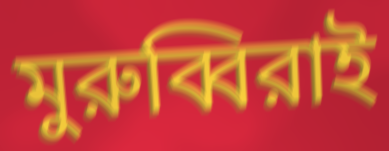
মুরুব্বিরাই